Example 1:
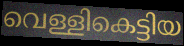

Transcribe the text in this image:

വെള്ളികെട്ടിയ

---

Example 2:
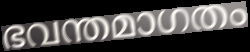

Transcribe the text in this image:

ഭവന്തമാഗതം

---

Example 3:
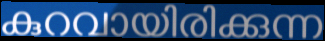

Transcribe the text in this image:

കുറവായിരിക്കുന്ന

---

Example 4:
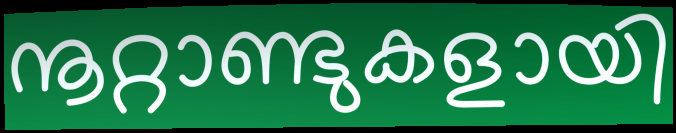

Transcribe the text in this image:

നൂറ്റാണ്ടുകളായി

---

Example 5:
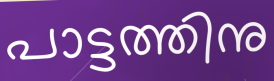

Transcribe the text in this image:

പാട്ടത്തിനു